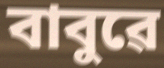
বাবুৱে